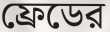
ফ্রেডের